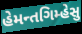
હેમન્તગિમ્હેસુ